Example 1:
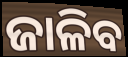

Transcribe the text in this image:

ଜାଳିବ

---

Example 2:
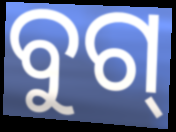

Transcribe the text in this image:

ବୁଗ୍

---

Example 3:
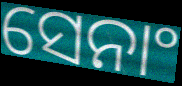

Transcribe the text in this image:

ସେନାଂ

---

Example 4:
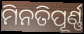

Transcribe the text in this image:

ମିନତିପୂର୍ଣ୍ଣ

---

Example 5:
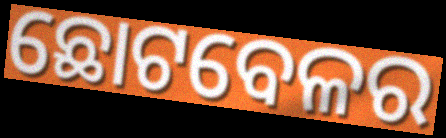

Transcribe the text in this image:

ଛୋଟବେଳର